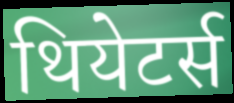
थियेटर्स